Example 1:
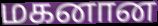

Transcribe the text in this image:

மகனான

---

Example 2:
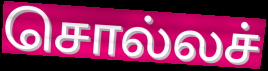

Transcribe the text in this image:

சொல்லச்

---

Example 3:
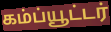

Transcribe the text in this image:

கம்ப்யூட்டர்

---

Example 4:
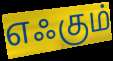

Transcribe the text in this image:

எஃகும்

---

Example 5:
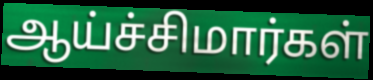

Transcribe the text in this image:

ஆய்ச்சிமார்கள்